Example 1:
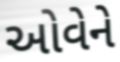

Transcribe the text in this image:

ઓવેને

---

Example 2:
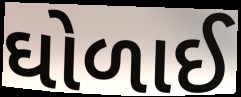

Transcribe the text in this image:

ઘોળાઈ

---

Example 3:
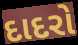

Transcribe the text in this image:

દાદરો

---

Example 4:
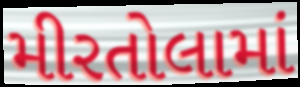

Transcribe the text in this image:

મીરતોલામાં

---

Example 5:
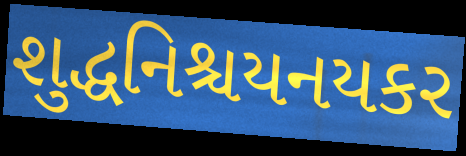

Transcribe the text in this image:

શુદ્ધનિશ્ચયનયકર